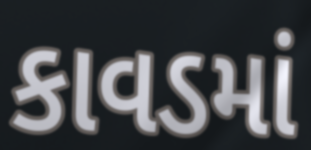
કાવડમાં